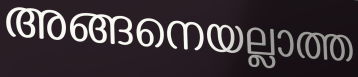
അങ്ങനെയല്ലാത്ത